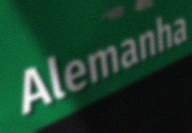
Alemanha